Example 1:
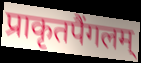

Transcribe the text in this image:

प्राकृतपैंगलम्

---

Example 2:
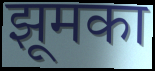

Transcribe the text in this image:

झूमका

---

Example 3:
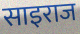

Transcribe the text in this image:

साइराज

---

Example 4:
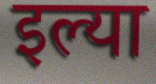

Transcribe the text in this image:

इल्या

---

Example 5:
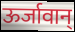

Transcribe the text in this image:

ऊर्जावान्